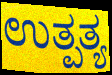
ಉತ್ಪತ್ಯ